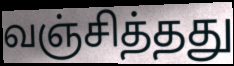
வஞ்சித்தது